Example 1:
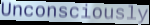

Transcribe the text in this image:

Unconsciously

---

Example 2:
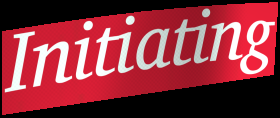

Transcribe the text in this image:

Initiating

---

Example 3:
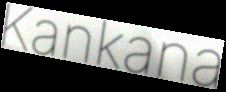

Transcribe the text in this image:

Kankana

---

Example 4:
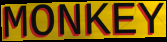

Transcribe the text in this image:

MONKEY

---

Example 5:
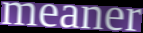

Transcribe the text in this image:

meaner